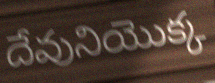
దేవునియొక్క